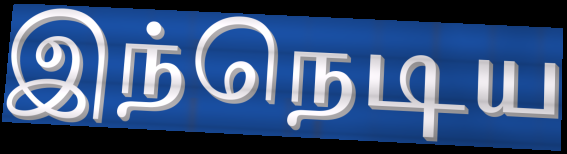
இந்நெடிய